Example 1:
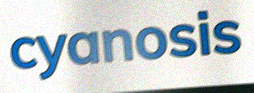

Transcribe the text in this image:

cyanosis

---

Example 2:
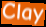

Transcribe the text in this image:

Clay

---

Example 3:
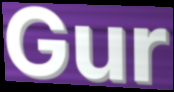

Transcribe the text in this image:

Gur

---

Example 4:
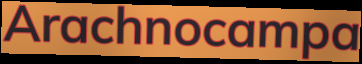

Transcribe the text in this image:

Arachnocampa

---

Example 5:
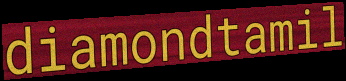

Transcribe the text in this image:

diamondtamil